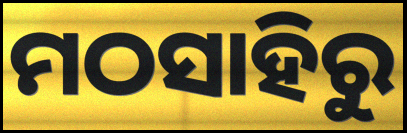
ମଠସାହିରୁ